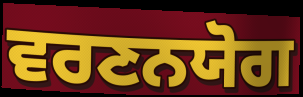
ਵਰਣਨਯੋਗ